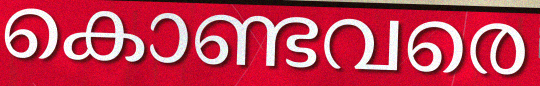
കൊണ്ടവരെ